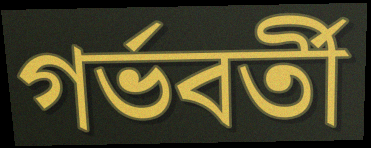
গর্ভবর্তী